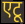
एटू